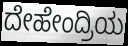
ದೇಹೇಂದ್ರಿಯ